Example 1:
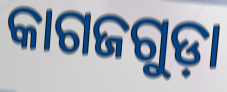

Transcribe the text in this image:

କାଗଜଗୁଡ଼ା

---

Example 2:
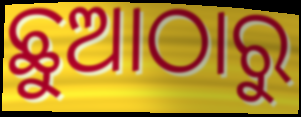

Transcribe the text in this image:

ଛୁଆଠାରୁ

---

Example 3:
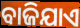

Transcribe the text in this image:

ବାଜିଯାଏ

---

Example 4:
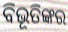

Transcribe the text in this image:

ବିଭୂତିଙ୍କର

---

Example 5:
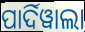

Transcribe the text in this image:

ପାର୍ଦିୱାଲା